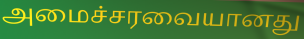
அமைச்சரவையானது